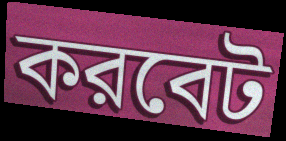
করবেট